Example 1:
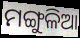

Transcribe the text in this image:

ମଙ୍ଗୁଳିଆ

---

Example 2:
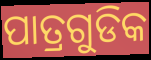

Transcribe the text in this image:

ପାତ୍ରଗୁଡିକ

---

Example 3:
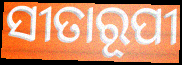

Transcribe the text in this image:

ସୀତାରୂପୀ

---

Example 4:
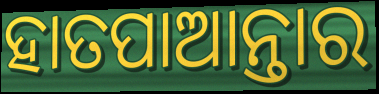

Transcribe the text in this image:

ହାତପାଆନ୍ତାର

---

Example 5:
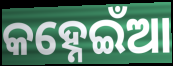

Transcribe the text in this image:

କହ୍ନେଇଁଆ